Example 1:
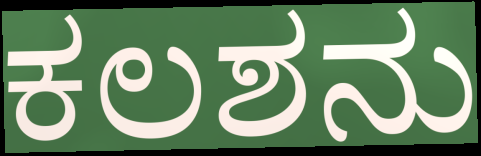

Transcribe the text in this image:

ಕಲಶನು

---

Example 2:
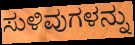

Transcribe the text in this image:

ಸುಳಿವುಗಳನ್ನು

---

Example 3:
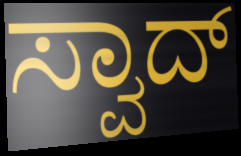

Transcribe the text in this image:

ಸ್ವಾದ್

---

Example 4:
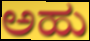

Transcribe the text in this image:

ಅಹು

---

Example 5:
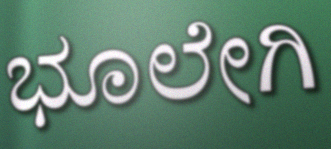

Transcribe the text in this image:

ಭೂಲೇಗಿ